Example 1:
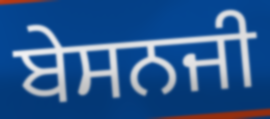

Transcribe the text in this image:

ਬੇਸਨਜੀ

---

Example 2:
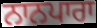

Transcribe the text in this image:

ਨਾਨਪਾਰਾ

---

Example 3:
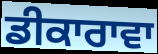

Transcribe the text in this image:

ਡੀਕਾਰਾਵਾ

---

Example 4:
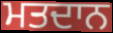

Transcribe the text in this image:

ਮਤਦਾਨ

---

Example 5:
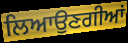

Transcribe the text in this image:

ਲਿਆਉਣਗੀਆਂ